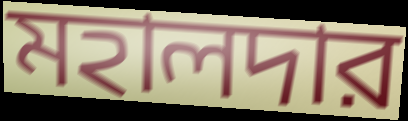
মহালদার